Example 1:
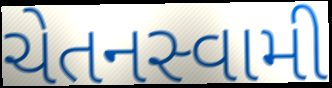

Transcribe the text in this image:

ચેતનસ્વામી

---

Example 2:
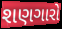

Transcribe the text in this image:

શણગારો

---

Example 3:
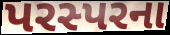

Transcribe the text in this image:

પરસ્પરના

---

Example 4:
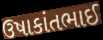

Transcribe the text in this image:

ઉષાકાંતભાઈ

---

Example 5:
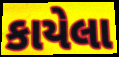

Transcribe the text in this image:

કાયેલા